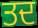
ਤਦ